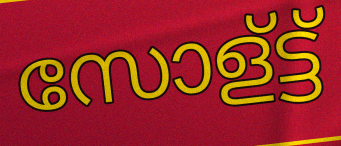
സോള്ട്ട്